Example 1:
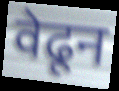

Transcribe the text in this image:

वेढून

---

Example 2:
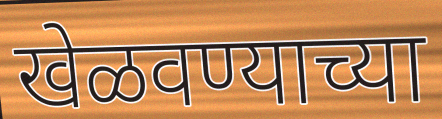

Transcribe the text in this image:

खेळवण्याच्या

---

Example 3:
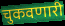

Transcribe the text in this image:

चुकवणारी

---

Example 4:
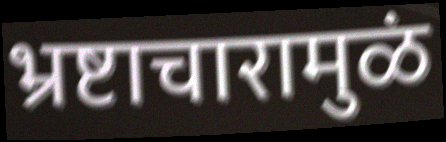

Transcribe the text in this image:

भ्रष्टाचारामुळं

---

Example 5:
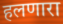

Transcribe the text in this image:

हलणारा